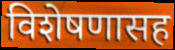
विशेषणासह